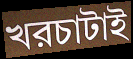
খরচাটাই